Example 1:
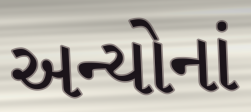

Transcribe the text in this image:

અન્યોનાં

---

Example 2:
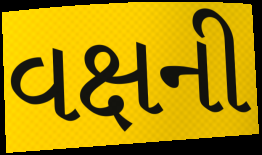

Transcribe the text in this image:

વક્ષની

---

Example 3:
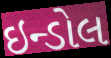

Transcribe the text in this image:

ઇન્ડોલ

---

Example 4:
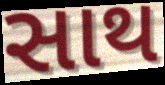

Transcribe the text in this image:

સાથ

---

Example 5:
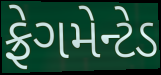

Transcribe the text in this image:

ફ્રેગમેન્ટેડ